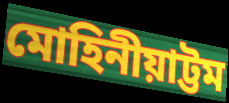
মোহিনীয়াট্টম